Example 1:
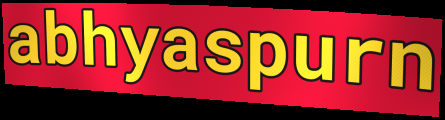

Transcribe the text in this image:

abhyaspurn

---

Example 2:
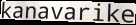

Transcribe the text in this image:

kanavarike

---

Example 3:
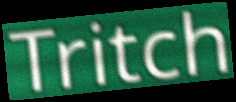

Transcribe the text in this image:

Tritch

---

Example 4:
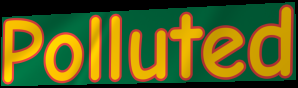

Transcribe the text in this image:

Polluted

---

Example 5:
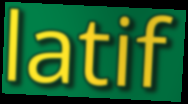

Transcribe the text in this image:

latif